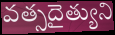
వత్సదైత్యుని